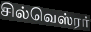
சில்வெஸ்ரர்